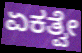
ಏಕತ್ವೇ